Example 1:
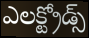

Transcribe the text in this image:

ఎలక్ట్రోడ్స్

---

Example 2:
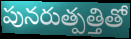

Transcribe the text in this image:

పునరుత్పత్తితో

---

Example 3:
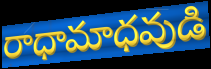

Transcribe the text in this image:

రాధామాధవుడి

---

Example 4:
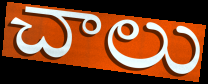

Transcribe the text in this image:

చాలు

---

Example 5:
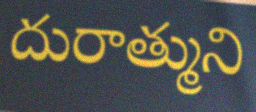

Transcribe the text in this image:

దురాత్ముని